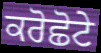
ਕਰੋਛੋਟੇ